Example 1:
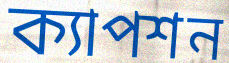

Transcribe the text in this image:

ক্যাপশন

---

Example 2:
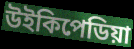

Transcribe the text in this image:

উইকিপেডিয়া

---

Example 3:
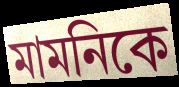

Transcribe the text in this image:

মামনিকে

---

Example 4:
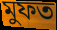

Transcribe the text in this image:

মুফত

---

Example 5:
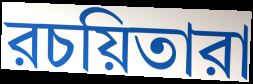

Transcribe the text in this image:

রচয়িতারা